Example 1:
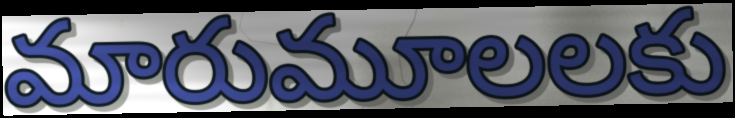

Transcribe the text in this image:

మారుమూలలకు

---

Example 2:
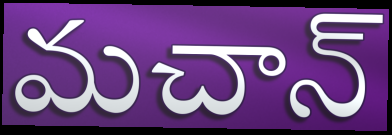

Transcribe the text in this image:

మచాన్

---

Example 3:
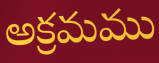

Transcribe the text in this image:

అక్రమము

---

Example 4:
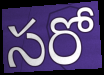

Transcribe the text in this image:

సరో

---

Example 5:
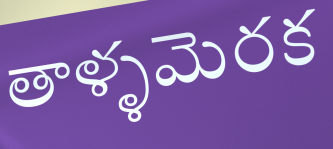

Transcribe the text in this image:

తాళ్ళమెరక